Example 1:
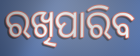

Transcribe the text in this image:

ରଖିପାରିବ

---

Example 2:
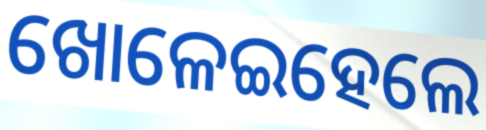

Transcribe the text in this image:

ଖୋଳେଇହେଲେ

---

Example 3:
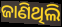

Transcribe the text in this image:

ଜାଣିଥିଲି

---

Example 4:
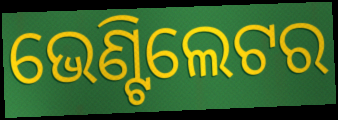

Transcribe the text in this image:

ଭେଣ୍ଟିଲେଟର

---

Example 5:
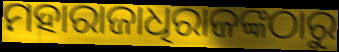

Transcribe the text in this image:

ମହାରାଜାଧିରାଜଙ୍କଠାରୁ